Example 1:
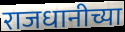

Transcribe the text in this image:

राजधानीच्या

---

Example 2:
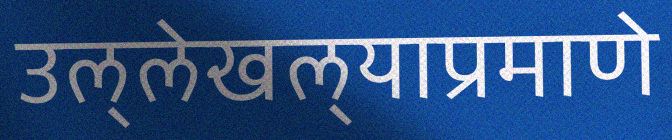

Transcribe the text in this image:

उल्लेखल्याप्रमाणे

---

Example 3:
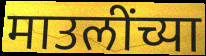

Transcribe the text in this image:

माउलींच्या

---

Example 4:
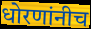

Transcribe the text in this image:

धोरणांनीच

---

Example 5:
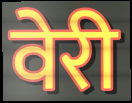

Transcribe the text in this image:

वेरी